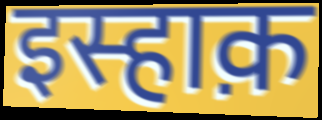
इस्हाक़